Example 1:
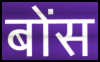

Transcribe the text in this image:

बोंस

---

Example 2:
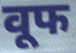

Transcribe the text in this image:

वूफ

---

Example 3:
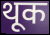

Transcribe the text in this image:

थूक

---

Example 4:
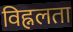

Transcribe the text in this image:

विह्नलता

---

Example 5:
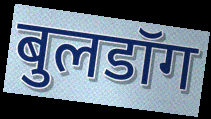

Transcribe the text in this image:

बुलडॉग